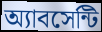
অ্যাবসেন্টি